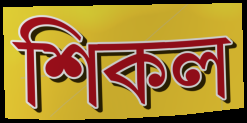
শিকল